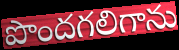
పొందగలిగాను